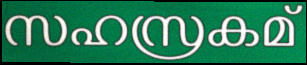
സഹസ്രകമ്